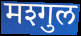
मश्गुल